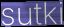
sutki